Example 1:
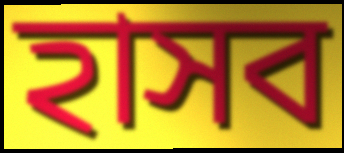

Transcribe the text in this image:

হাসব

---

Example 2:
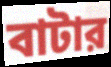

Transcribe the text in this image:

বাটার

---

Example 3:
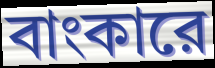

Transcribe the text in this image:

বাংকারে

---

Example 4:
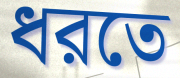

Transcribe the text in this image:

ধরতে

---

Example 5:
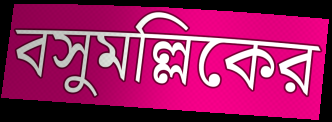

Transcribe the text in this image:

বসুমল্লিকের